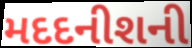
મદદનીશની